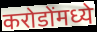
करोडोंमध्ये